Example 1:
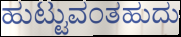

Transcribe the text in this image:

ಹುಟ್ಟುವಂತಹುದು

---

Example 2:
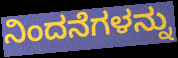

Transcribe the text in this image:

ನಿಂದನೆಗಳನ್ನು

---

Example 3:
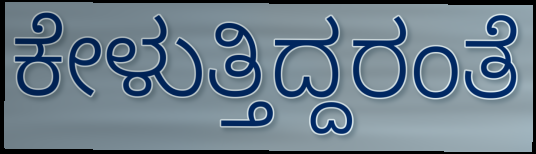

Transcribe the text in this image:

ಕೇಳುತ್ತಿದ್ದರಂತೆ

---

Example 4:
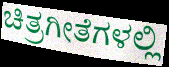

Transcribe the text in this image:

ಚಿತ್ರಗೀತೆಗಳಲ್ಲಿ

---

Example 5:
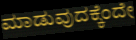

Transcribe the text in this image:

ಮಾಡುವುದಕ್ಕೆಂದೇ